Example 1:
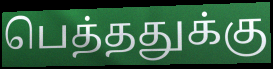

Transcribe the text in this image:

பெத்ததுக்கு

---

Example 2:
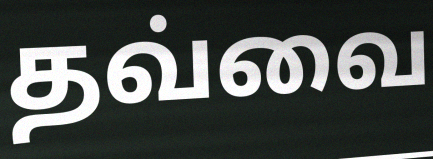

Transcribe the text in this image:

தவ்வை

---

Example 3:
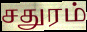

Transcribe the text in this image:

சதுரம்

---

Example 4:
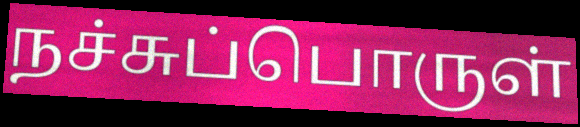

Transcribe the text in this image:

நச்சுப்பொருள்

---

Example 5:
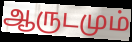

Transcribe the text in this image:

ஆருடமும்